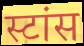
स्टांस